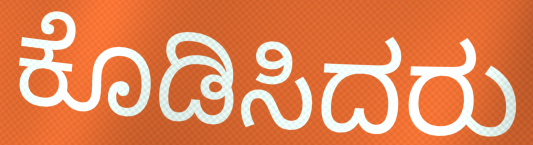
ಕೊಡಿಸಿದರು